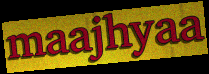
maajhyaa